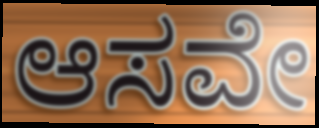
ಆಸವೇ